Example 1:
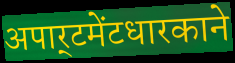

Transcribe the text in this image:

अपार्टमेंटधारकाने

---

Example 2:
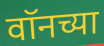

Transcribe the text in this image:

वॉनच्या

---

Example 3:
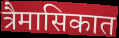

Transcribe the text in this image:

त्रैमासिकात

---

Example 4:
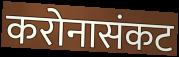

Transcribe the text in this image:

करोनासंकट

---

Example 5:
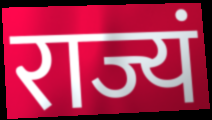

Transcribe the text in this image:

राज्यं